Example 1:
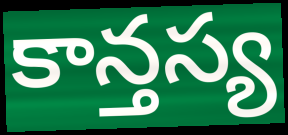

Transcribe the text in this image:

కాన్తస్య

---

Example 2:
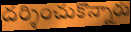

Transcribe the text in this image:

దర్శించుకొన్నారు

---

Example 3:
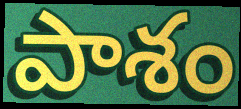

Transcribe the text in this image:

పాశం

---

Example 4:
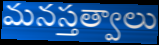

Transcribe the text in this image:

మనస్తత్వాలు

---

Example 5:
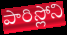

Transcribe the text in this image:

పారిస్లోని